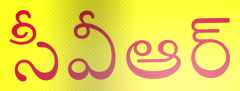
సీవీఆర్